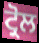
ਟ੍ਰੋਲ